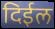
दिईल